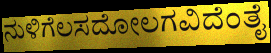
ನುಳಿಗೆಲಸದೋಲಗವಿದೆಂತೈ